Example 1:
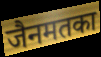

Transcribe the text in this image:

जैनमतका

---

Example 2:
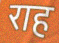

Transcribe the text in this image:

राह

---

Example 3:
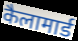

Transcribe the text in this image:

कैलामार्ड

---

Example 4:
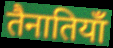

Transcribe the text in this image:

तैनातियाँ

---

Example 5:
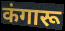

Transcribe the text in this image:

कंगारू